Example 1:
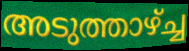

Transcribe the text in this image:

അടുത്താഴ്ച്ച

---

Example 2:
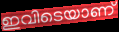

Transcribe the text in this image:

ഇവിടെയാണ്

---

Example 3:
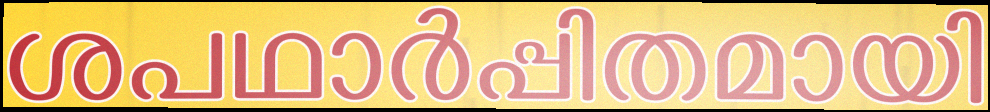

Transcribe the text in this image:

ശപഥാർപ്പിതമായി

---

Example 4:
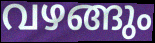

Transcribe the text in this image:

വഴങ്ങും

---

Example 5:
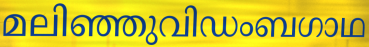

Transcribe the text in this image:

മലിഞ്ഞുവിഡംബഗാഥ